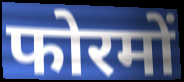
फोरमों